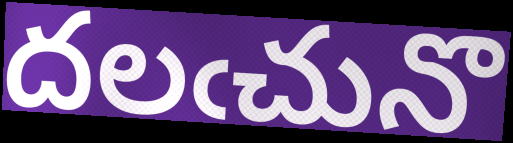
దలఁచునొ